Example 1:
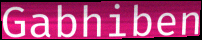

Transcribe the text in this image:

Gabhiben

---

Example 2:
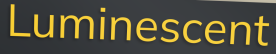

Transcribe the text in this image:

Luminescent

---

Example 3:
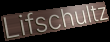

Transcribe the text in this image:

Lifschultz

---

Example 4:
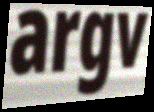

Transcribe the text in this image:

argv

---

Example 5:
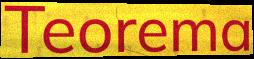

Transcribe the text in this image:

Teorema